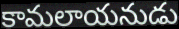
కామలాయనుడు